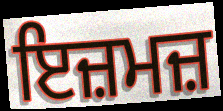
ਇਜ਼ਮਜ਼